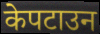
केपटाउन